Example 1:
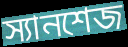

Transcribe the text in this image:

স্যানশেজ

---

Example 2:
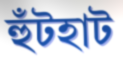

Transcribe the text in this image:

হুঁটহাট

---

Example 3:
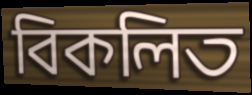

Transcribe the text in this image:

বিকলিত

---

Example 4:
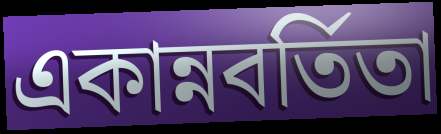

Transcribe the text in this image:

একান্নবর্তিতা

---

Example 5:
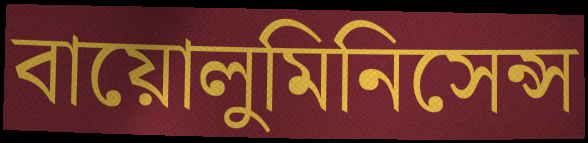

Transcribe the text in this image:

বায়োলুমিনিসেন্স